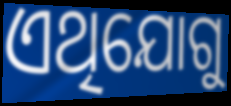
ଏଥିଯୋଗୁ